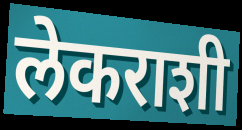
लेकराशी